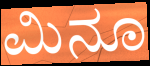
ಮಿನೂ